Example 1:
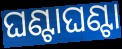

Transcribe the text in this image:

ଘଣ୍ଟାଘଣ୍ଟା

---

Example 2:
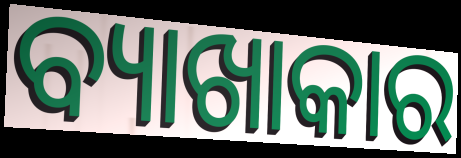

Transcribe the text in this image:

ବ୍ୟାଖାକାର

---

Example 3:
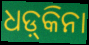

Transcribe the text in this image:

ଧଡ଼୍‍କିନା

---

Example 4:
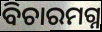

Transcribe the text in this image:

ବିଚାରମଗ୍ନ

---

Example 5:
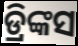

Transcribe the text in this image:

ଡ୍ରିଙ୍କସ